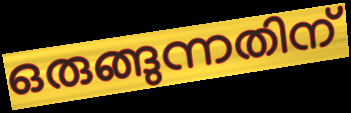
ഒരുങ്ങുന്നതിന്